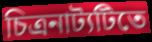
চিত্রনাট্যটিতে